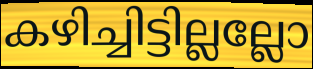
കഴിച്ചിട്ടില്ലല്ലോ